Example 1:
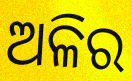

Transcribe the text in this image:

ଅଳିର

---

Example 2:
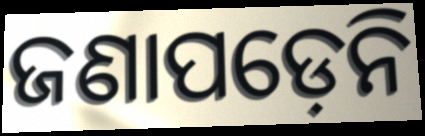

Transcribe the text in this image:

ଜଣାପଡ଼େନି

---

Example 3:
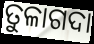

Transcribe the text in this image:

ତୁଳାଗଦା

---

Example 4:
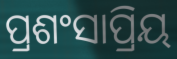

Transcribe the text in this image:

ପ୍ରଶଂସାପ୍ରିୟ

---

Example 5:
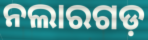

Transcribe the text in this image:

ନଲାରଗଡ଼